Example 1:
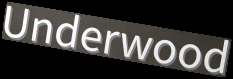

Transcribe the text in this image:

Underwood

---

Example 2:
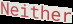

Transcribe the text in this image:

Neither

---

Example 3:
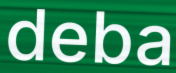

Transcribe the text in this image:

deba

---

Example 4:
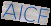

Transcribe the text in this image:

AICF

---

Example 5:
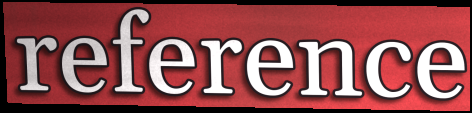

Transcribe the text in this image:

reference